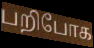
பறிபோக